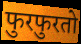
फुरफुरतो